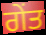
ਗੇਂਤ